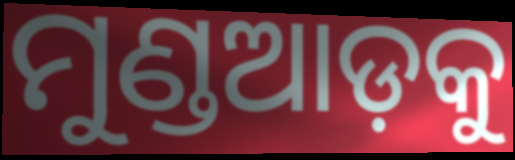
ମୁଣ୍ଡଆଡ଼କୁ